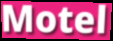
Motel